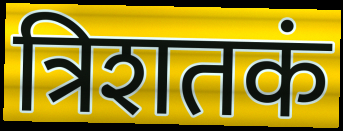
त्रिशतकं